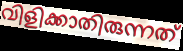
വിളിക്കാതിരുന്നത്